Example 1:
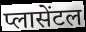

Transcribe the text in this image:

प्लासेंटल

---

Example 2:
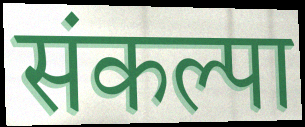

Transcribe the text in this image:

संकल्पा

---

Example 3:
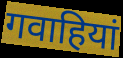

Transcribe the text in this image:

गवाहियां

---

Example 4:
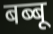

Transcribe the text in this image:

बब्बू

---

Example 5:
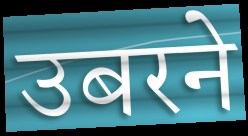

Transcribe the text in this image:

उबरने